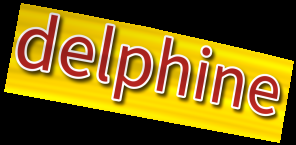
delphine